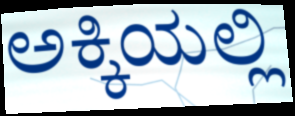
ಅಕ್ಕಿಯಲ್ಲಿ